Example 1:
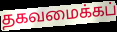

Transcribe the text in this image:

தகவமைக்கப்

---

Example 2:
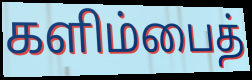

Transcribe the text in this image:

களிம்பைத்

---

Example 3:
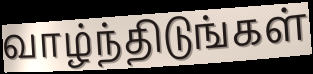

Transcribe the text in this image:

வாழ்ந்திடுங்கள்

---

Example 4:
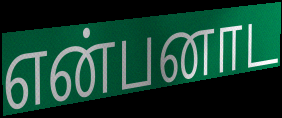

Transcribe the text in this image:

என்பனாட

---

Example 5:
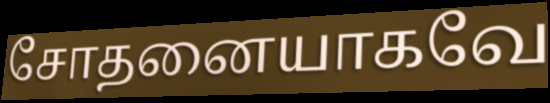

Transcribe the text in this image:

சோதனையாகவே